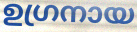
ഉഗ്രനായ